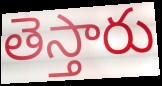
తెస్తారు